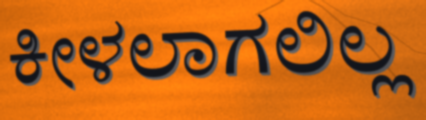
ಕೀಳಲಾಗಲಿಲ್ಲ